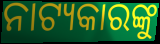
ନାଟ୍ୟକାରଙ୍କୁ